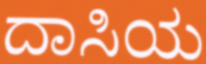
ದಾಸಿಯ